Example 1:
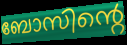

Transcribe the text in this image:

ബോസിന്റെ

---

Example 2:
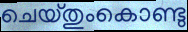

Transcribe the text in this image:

ചെയ്തുംകൊണ്ടു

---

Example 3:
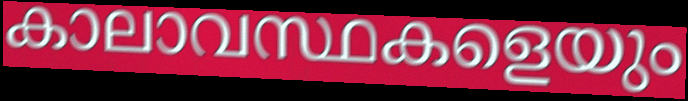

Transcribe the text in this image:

കാലാവസ്ഥകളെയും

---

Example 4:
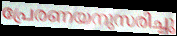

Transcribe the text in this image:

പ്രേരണയനുസരിച്ചു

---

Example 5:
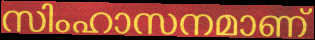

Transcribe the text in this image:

സിംഹാസനമാണ്